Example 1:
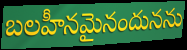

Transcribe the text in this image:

బలహీనమైనందునను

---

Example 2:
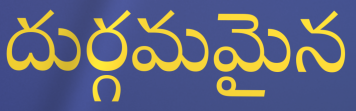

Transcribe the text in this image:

దుర్గమమైన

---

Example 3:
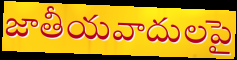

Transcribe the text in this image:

జాతీయవాదులపై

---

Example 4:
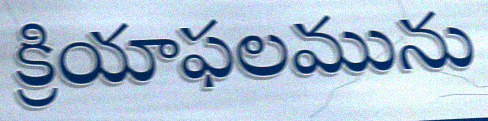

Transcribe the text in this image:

క్రియాఫలమును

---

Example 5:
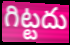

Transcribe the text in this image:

గిట్టదు